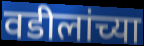
वडीलांच्या